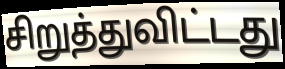
சிறுத்துவிட்டது